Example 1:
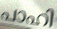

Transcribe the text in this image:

പാഹി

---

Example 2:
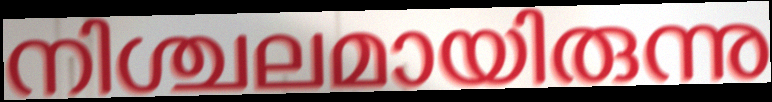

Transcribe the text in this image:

നിശ്ചലമായിരുന്നു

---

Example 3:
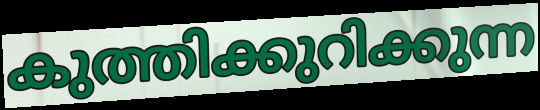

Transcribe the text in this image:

കുത്തിക്കുറിക്കുന്ന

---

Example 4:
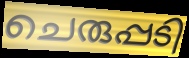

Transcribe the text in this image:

ചെരുപ്പടി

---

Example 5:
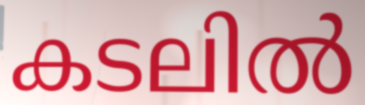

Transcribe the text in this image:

കടലിൽ